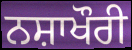
ਨਸ਼ਾਖੌਰੀ